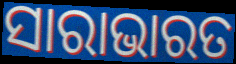
ସାରାଭାରତ